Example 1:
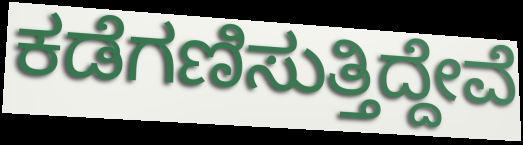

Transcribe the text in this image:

ಕಡೆಗಣಿಸುತ್ತಿದ್ದೇವೆ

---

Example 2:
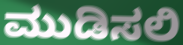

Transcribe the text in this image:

ಮುಡಿಸಲಿ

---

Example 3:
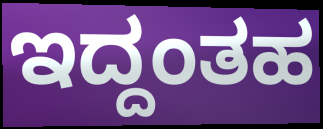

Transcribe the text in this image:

ಇದ್ದಂತಹ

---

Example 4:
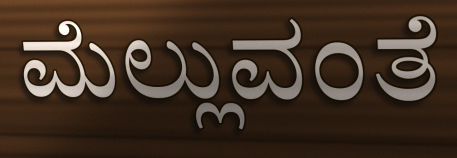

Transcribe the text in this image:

ಮೆಲ್ಲುವಂತೆ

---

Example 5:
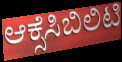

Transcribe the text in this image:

ಆಕ್ಸೆಸಿಬಿಲಿಟಿ